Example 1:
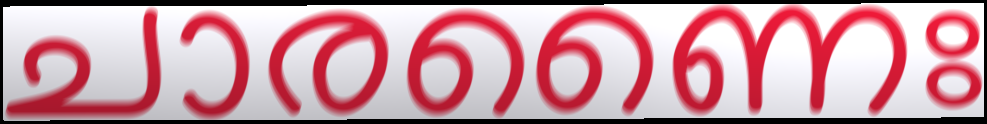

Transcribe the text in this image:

ചാരണൈഃ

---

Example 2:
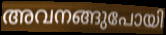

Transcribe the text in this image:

അവനങ്ങുപോയി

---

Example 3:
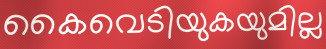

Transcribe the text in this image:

കൈവെടിയുകയുമില്ല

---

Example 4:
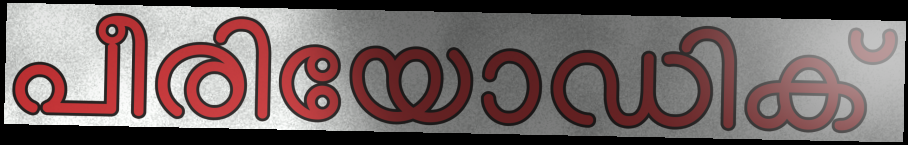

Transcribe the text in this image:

പീരിയോഡിക്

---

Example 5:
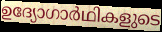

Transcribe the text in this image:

ഉദ്യോഗാർഥികളുടെ